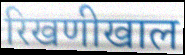
रिखणीखाल